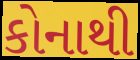
કોનાથી